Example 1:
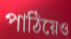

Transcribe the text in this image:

পাঠিয়েও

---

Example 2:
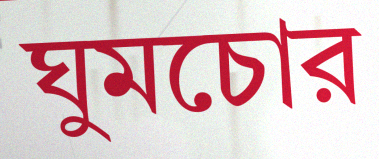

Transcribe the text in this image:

ঘুমচোর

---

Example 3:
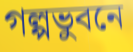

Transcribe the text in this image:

গল্পভুবনে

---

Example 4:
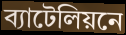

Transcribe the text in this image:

ব্যাটেলিয়নে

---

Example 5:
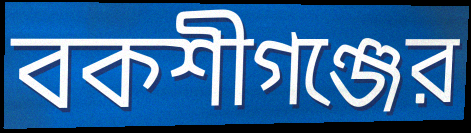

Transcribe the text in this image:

বকশীগঞ্জের